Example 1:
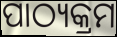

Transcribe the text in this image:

ପାଠ୍ୟକ୍ରମ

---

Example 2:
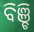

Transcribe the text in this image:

ବିଞ୍ଚି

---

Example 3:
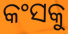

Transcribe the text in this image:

କଂସକୁ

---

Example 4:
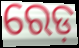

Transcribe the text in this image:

ରେଡ଼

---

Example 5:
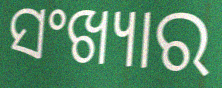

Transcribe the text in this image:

ସଂଖ୍ୟାର